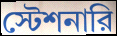
স্টেশনারি